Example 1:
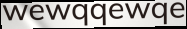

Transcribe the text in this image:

wewqqewqe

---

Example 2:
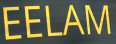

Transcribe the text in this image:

EELAM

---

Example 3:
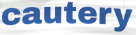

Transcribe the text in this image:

cautery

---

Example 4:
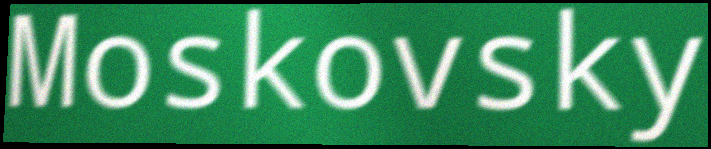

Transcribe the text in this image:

Moskovsky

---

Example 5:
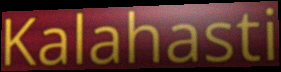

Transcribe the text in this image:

Kalahasti